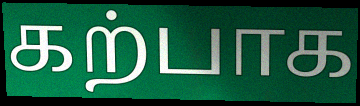
கற்பாக